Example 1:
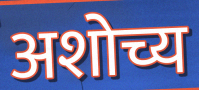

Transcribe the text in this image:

अशोच्य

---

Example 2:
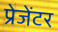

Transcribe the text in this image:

प्रेजेंटर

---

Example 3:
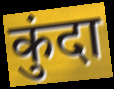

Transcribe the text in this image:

कुंदा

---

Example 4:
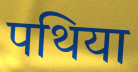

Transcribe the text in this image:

पथिया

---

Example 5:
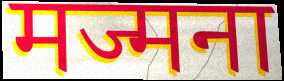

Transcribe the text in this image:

मज्मना